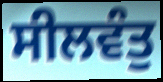
ਸੀਲਵੰਤੁ